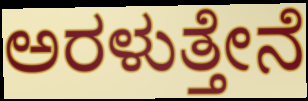
ಅರಳುತ್ತೇನೆ